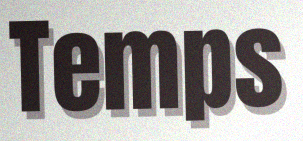
Temps